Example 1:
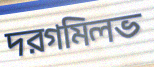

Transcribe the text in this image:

দরগমিলভ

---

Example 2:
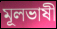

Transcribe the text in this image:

মূলভাষী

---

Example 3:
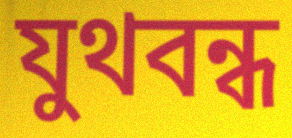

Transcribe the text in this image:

যুথবন্ধ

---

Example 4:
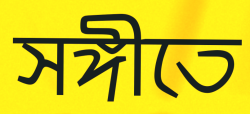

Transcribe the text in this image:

সঙ্গীতে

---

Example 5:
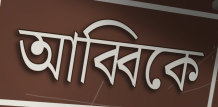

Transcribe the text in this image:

আব্বিকে